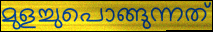
മുളച്ചുപൊങ്ങുന്നത്